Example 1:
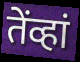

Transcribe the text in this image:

तेंव्हां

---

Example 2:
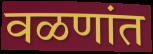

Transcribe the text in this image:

वळणांत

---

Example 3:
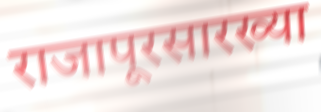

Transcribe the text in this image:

राजापूरसारख्या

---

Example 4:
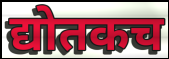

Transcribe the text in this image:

द्योतकच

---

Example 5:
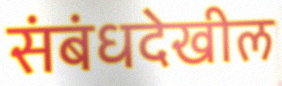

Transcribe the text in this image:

संबंधदेखील